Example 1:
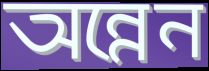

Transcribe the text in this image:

অন্নেন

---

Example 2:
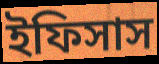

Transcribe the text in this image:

ইফিসাস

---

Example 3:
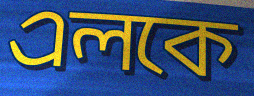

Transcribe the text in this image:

এলকে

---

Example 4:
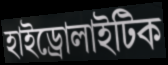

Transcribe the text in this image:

হাইড্রোলাইটিক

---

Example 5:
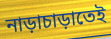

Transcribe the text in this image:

নাড়াচাড়াতেই